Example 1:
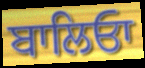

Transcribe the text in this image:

ਬਾਲਿਓਾ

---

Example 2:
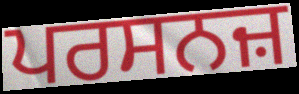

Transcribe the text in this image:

ਪਰਸਨਜ਼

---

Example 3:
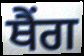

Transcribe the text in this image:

ਥੈਂਗ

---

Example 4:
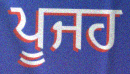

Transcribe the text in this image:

ਪੂਜਹ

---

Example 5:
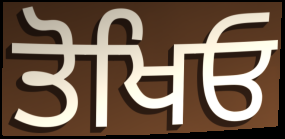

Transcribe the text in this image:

ਤੋਖਿਓ